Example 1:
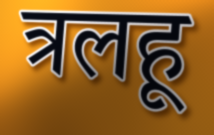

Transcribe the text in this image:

त्रलहू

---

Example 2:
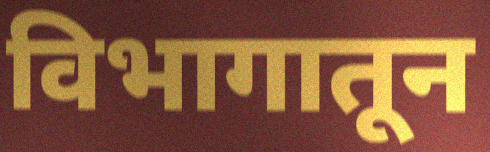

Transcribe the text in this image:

विभागातून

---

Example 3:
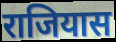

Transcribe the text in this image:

राजियास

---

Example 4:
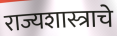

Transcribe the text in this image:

राज्यशास्त्राचे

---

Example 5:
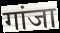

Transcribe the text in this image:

गांजा